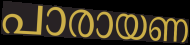
പാരായണ